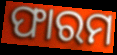
ଫାରମ